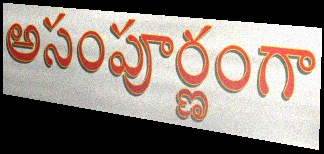
అసంపూర్ణంగా